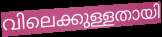
വിലെക്കുള്ളതായി